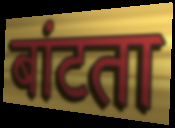
बांटता